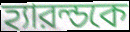
হ্যারল্ডকে